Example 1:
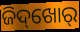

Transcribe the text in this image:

ଜିଦ୍‌ଖୋର୍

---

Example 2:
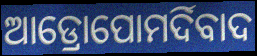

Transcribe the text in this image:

ଆଡ୍ରୋପୋମର୍ଦିବାଦ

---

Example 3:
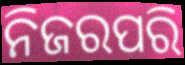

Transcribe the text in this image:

ନିଜରପରି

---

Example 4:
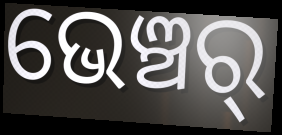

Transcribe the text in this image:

ଭେଞ୍ଚର୍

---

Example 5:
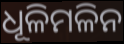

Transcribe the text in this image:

ଧୂଳିମଳିନ